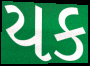
યક